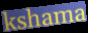
kshama